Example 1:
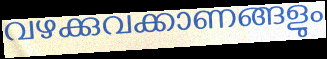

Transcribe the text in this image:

വഴക്കുവക്കാണങ്ങളും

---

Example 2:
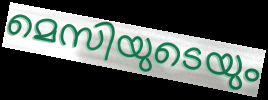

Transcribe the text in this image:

മെസിയുടെയും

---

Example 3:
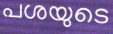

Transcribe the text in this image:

പശയുടെ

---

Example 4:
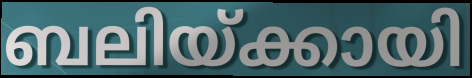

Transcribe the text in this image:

ബലിയ്ക്കായി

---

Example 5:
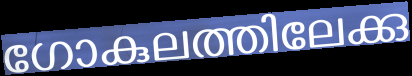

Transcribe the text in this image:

ഗോകുലത്തിലേക്കു